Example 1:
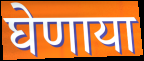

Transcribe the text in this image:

घेणाया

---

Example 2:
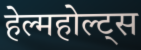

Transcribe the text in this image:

हेल्महोल्ट्स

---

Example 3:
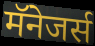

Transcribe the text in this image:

मॅनेजर्स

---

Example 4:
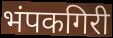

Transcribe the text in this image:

भंपकगिरी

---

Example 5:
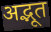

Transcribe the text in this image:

अद्भूत